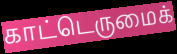
காட்டெருமைக்